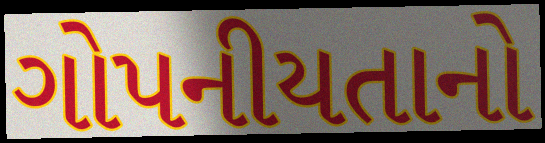
ગોપનીયતાનો